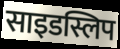
साइडस्लिप